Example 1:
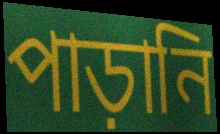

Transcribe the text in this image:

পাড়ানি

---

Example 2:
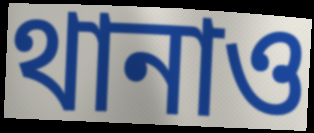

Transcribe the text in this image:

থানাও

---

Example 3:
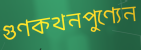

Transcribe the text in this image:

গুণকথনপুণ্যেন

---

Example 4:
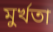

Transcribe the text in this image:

মুর্খতা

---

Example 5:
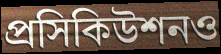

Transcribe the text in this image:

প্রসিকিউশনও